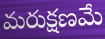
మరుక్షణమే